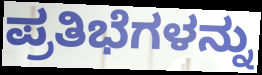
ಪ್ರತಿಭೆಗಳನ್ನು